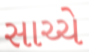
સાચ્ચે